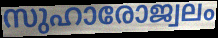
സുഹാരോജ്വലം